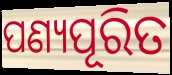
ପଣ୍ୟପୂରିତ